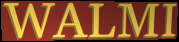
WALMI